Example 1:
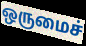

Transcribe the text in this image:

ஒருமைச்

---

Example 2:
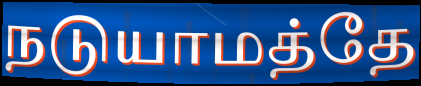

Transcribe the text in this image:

நடுயாமத்தே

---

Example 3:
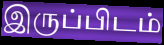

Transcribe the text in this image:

இருப்பிடம்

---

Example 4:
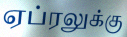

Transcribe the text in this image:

ஏப்ரலுக்கு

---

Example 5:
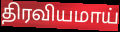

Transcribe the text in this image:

திரவியமாய்